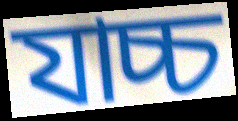
যাচ্চ